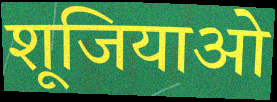
शूजियाओ